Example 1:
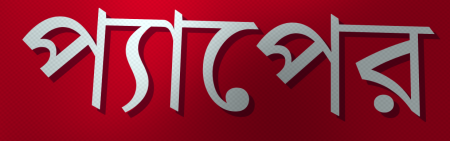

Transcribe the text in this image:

প্যাপের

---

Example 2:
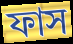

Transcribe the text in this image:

ফাস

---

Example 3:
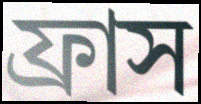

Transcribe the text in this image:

ফ্রাস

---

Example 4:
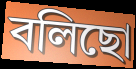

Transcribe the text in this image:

বলিছো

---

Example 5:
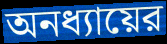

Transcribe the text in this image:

অনধ্যায়ের